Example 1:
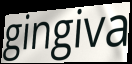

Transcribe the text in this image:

gingiva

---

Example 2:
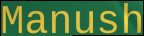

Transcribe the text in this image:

Manush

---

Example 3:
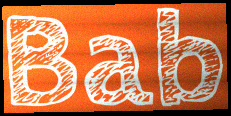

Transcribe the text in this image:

Bab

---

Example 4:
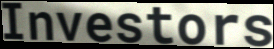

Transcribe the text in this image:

Investors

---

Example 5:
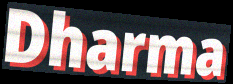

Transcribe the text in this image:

Dharma